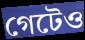
গেটেও